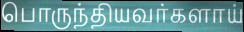
பொருந்தியவர்களாய்